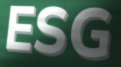
ESG